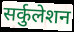
सर्कुलेशन